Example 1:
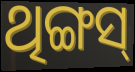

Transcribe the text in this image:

ଥିଙ୍ଗସ୍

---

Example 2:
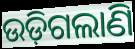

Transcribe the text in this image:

ଉଡ଼ିଗଲାଣି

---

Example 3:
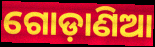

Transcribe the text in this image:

ଗୋଡ଼ାଣିଆ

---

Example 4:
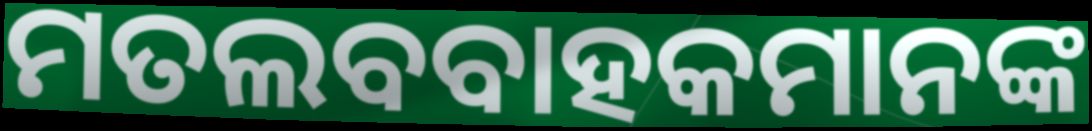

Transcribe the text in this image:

ମତଲବବାହକମାନଙ୍କ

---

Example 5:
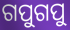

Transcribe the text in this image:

ଗପୁଗପୁ